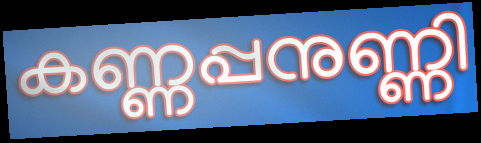
കണ്ണപ്പനുണ്ണി